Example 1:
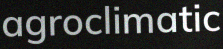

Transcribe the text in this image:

agroclimatic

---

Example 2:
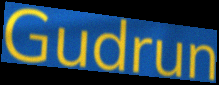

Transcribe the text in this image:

Gudrun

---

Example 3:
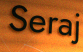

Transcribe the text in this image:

Seraj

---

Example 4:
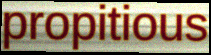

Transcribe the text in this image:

propitious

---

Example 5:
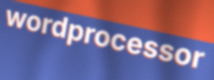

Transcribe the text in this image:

wordprocessor